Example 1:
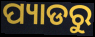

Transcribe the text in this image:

ପ୍ୟାଡରୁ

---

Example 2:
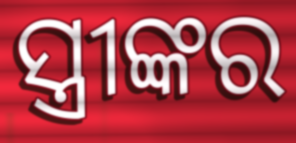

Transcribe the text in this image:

ସ୍ତ୍ରୀଙ୍କର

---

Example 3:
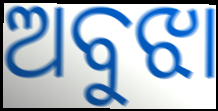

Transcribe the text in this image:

ଅବୁଝା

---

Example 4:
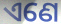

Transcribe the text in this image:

ଏଣେ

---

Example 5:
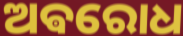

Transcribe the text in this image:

ଅଵରୋଧ